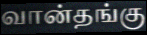
வான்தங்கு